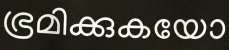
ഭ്രമിക്കുകയോ